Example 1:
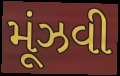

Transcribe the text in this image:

મૂંઝવી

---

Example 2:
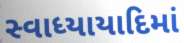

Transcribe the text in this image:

સ્વાધ્યાયાદિમાં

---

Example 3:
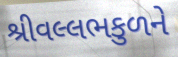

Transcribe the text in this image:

શ્રીવલ્લભકુળને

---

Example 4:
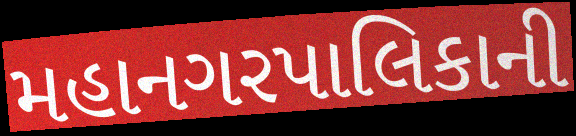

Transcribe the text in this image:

મહાનગરપાલિકાની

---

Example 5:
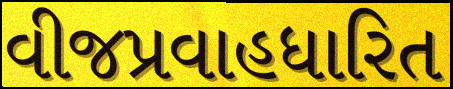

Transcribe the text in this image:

વીજપ્રવાહધારિત